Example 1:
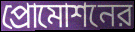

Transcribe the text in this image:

প্রোমোশনের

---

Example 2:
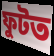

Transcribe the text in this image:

ফুটত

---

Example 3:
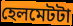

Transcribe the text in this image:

হেলমেটটা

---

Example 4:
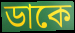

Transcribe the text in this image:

ডাকে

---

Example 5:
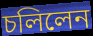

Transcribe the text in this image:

চলিলেন